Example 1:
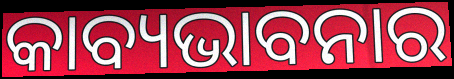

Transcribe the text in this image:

କାବ୍ୟଭାବନାର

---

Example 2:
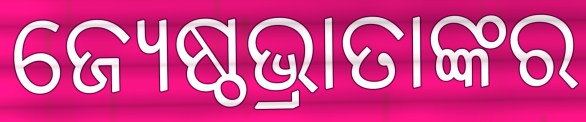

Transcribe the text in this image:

ଜ୍ୟେଷ୍ଠଭ୍ରାତାଙ୍କର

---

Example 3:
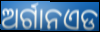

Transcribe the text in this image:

ଅର୍ଗାନଏଡ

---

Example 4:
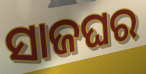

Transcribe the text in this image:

ସାଜଘର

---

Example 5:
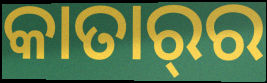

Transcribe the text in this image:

କାତାର୍‌ର